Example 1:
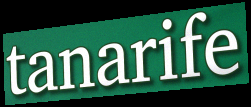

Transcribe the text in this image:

tanarife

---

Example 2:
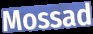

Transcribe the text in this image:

Mossad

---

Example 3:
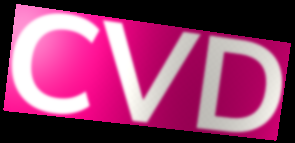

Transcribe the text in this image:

CVD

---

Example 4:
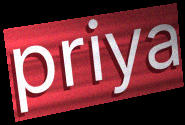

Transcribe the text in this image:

priya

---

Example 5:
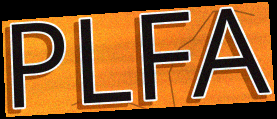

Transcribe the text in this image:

PLFA